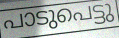
പാടുപെട്ടു